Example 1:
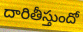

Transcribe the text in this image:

దారితీస్తుందో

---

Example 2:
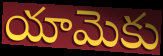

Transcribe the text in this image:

యామెకు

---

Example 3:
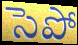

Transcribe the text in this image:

సెపో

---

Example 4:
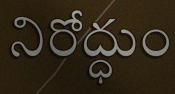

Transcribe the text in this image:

నిరోద్ధుం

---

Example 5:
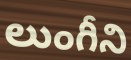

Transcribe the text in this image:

లుంగీని